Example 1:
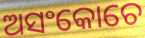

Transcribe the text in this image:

ଅସଂକୋଚେ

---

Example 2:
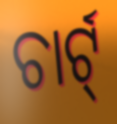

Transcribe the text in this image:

ଚାର୍ଟ୍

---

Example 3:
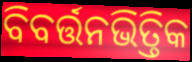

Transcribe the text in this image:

ବିବର୍ତ୍ତନଭିତ୍ତିକ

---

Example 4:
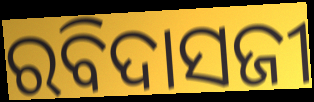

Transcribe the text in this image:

ରବିଦାସଜୀ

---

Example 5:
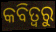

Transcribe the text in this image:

କବିତ୍ଵରୁ